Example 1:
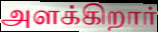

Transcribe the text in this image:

அளக்கிறார்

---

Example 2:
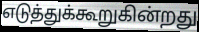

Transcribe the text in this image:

எடுத்துக்கூறுகின்றது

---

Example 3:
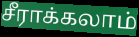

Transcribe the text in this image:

சீராக்கலாம்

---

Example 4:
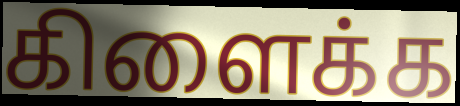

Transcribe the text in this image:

கிளைக்க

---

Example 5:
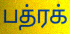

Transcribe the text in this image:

பத்ரக்